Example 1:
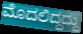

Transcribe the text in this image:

ಮೊದಲಿದ್ದದ್ದು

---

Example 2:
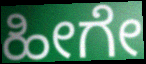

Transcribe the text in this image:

ಹೀಗೇ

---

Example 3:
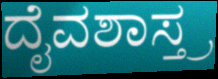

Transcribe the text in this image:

ದೈವಶಾಸ್ತ್ರ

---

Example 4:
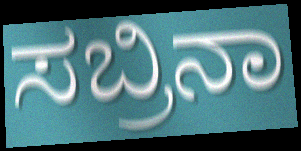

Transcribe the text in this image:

ಸಬ್ರಿನಾ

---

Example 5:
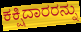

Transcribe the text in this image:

ಕಕ್ಷಿದಾರರನ್ನು